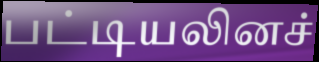
பட்டியலினச்